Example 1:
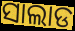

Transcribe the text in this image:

ସାଲାଡ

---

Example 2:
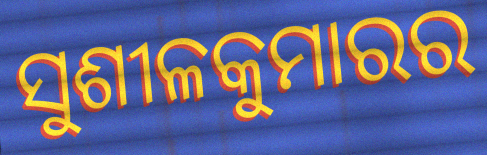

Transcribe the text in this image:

ସୁଶୀଳକୁମାରର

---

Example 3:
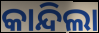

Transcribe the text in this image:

କାନ୍ଦିଲା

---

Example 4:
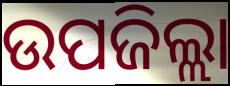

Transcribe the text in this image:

ଉପଜିଲ୍ଲା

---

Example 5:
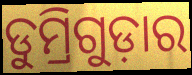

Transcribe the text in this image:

ଡୁମ୍ରିଗୁଡ଼ାର